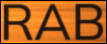
RAB